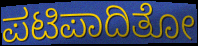
ಪಟಿಪಾದಿತೋ